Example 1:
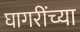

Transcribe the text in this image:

घागरींच्या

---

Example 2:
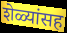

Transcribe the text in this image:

शेळ्यांसह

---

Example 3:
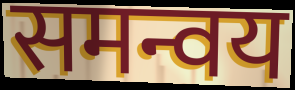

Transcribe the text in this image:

समन्वय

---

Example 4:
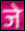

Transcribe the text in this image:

जे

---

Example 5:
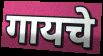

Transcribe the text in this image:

गायचे